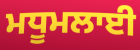
ਮਧੂਮਲਾਈ